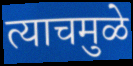
त्याचमुळे